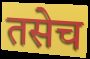
तसेच